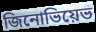
জিনোভিয়েভ